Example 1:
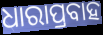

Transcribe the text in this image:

ଧାରାପ୍ରବାହ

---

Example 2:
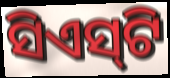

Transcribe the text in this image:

ସିଏସ୍‌ଟି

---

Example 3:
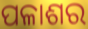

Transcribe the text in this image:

ପଳାଶର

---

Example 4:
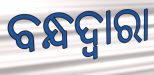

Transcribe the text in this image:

ବନ୍ଧଦ୍ବାରା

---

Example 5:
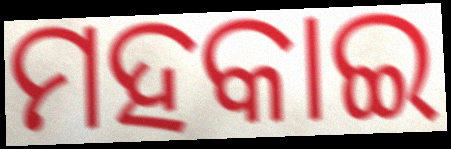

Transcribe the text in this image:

ମହକାଇ